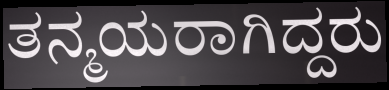
ತನ್ಮಯರಾಗಿದ್ದರು